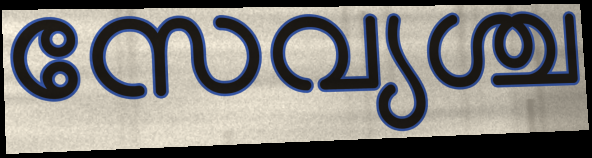
സേവ്യശ്ച